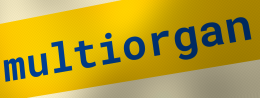
multiorgan